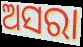
ଅସରା